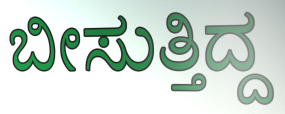
ಬೀಸುತ್ತಿದ್ದ